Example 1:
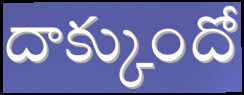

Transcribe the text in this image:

దాక్కుందో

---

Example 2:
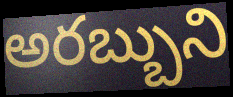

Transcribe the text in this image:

అరబ్బుని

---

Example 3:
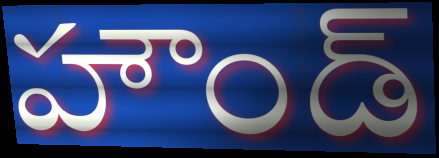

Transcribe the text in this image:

హౌండ్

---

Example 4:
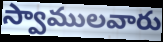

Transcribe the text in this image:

స్వాములవారు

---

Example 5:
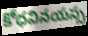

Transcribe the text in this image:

కోధవినయస్స